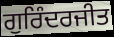
ਗੁਰਿੰਦਰਜੀਤ